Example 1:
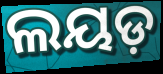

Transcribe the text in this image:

ଲୟଡ଼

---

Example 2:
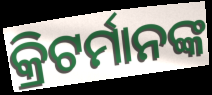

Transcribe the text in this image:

କ୍ରିଟର୍ମାନଙ୍କ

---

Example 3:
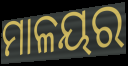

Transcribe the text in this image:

ମାଳୟର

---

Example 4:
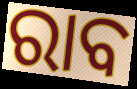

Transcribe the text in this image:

ରାବ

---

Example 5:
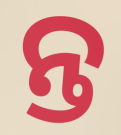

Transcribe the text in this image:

ନ୍ତ